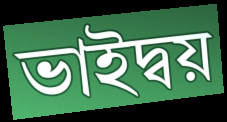
ভাইদ্বয়